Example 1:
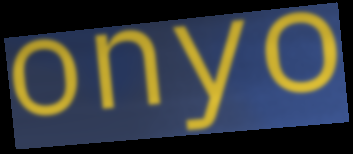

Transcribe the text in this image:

onyo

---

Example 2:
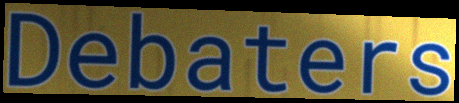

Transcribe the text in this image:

Debaters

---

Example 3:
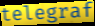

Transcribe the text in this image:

telegraf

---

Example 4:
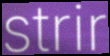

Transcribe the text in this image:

strir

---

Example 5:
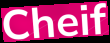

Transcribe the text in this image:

Cheif